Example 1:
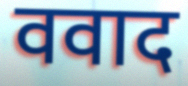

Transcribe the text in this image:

ववाद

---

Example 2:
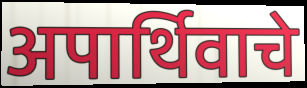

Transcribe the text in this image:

अपार्थिवाचे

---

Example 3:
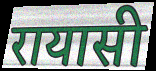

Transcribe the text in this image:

रायासी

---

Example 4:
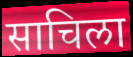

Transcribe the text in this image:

साचिला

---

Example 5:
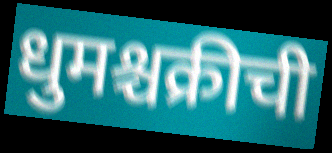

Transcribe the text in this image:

धुमश्चक्रीची